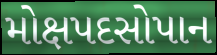
મોક્ષપદસોપાન